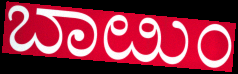
ಬಾೞುಂ